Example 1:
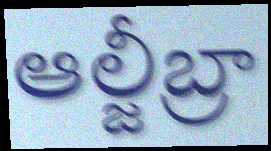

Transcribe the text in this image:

ఆల్జీబ్రా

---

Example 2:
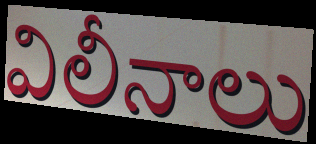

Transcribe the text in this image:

విలీనాలు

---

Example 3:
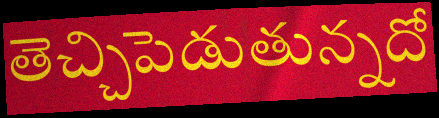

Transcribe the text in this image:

తెచ్చిపెడుతున్నదో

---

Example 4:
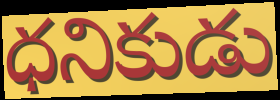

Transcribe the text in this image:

ధనికుడు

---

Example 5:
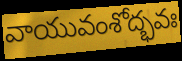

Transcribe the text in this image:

వాయువంశోద్భవః